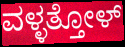
ವಳ್ಳತ್ತೋಳ್